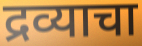
द्रव्याचा